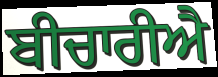
ਬੀਚਾਰੀਐ